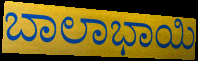
ಬಾಲಾಭಾಯಿ